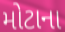
મોટાના